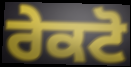
ਰੇਕਟੋ